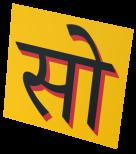
सो